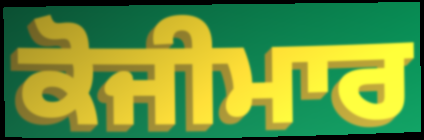
ਕੋਜੀਮਾਰ